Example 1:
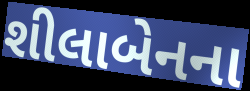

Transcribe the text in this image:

શીલાબેનના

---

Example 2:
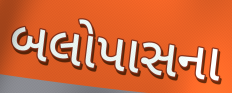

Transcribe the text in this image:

બલોપાસના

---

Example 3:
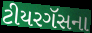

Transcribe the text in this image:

ટીયરગૅસના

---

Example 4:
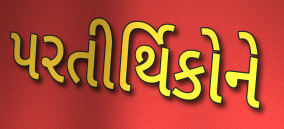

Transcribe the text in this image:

પરતીર્થિકોને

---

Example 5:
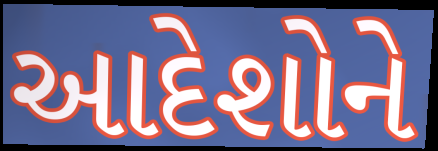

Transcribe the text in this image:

આદેશોને